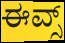
ಈವ್ಸ್